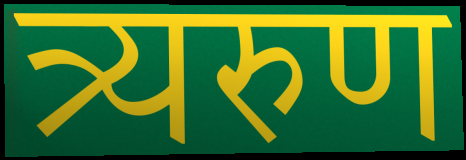
त्र्यरुण